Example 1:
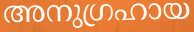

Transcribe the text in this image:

അനുഗ്രഹായ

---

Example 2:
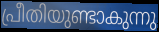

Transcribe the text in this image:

പ്രീതിയുണ്ടാകുന്നു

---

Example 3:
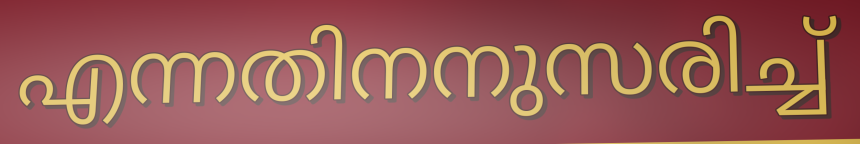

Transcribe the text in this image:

എന്നതിനനുസരിച്ച്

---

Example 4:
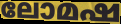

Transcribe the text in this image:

ലോമഷ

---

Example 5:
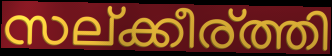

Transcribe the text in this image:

സല്ക്കീര്ത്തി